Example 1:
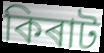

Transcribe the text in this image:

কিৰাট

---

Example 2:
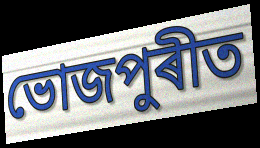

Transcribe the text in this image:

ভোজপুৰীত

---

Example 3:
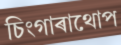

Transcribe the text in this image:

চিংগাৰাথোপ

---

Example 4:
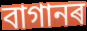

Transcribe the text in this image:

বাগানৰ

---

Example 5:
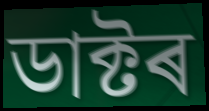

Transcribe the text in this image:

ডাক্টৰ